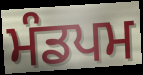
ਮੰਡਪਮ